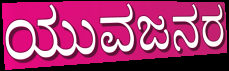
ಯುವಜನರ